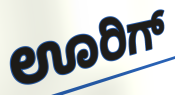
ಊರಿಗ್